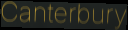
Canterbury